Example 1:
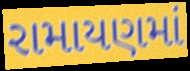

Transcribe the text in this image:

રામાયણમાં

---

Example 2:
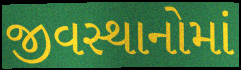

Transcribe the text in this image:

જીવસ્થાનોમાં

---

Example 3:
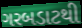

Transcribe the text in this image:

ગરબડાટથી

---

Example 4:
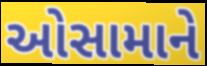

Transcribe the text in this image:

ઓસામાને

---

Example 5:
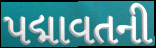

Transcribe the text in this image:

પદ્માવતની